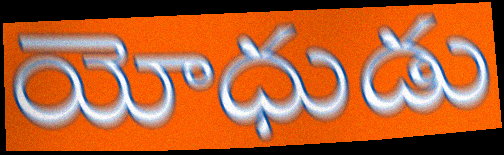
యోధుడు